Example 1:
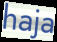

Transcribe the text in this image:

haja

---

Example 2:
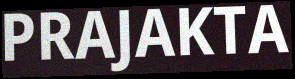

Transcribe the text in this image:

PRAJAKTA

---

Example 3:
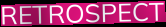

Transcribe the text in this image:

RETROSPECT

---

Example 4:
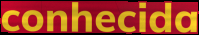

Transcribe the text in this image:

conhecida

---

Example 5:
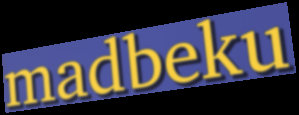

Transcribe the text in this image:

madbeku